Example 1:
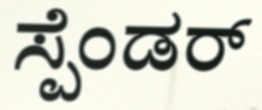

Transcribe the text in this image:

ಸ್ಪೆಂಡರ್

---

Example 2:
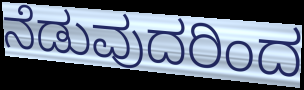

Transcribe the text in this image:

ನೆಡುವುದರಿಂದ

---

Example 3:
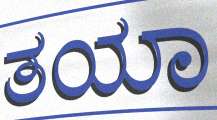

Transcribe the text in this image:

ತಯಾ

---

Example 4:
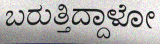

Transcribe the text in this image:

ಬರುತ್ತಿದ್ದಾಳೋ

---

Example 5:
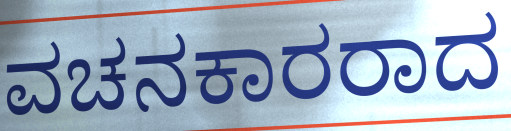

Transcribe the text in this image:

ವಚನಕಾರರಾದ